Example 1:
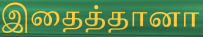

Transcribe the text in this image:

இதைத்தானா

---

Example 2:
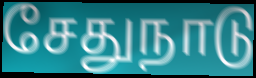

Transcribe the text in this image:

சேதுநாடு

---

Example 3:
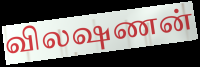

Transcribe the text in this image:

விலஷணன்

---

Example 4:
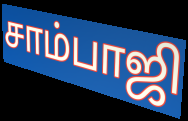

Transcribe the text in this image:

சாம்பாஜி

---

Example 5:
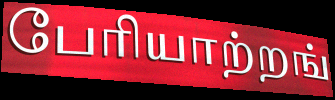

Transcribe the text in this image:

பேரியாற்றங்